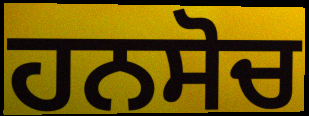
ਹਨਸੋਚ